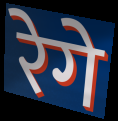
रेगे